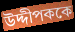
উদ্দীপককে